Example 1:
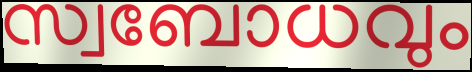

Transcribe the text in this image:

സ്വബോധവും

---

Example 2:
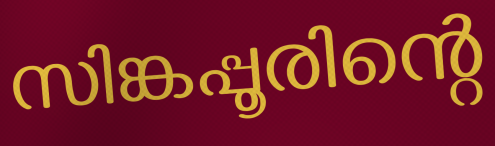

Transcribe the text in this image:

സിങ്കപ്പൂരിന്റെ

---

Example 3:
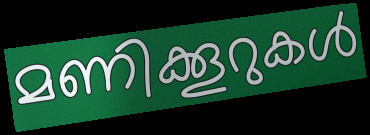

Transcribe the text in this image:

മണിക്കൂറുകൾ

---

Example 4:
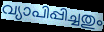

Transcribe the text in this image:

വ്യാപിപ്പിച്ചതും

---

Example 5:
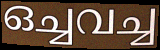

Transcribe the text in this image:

ഒച്ചവച്ച